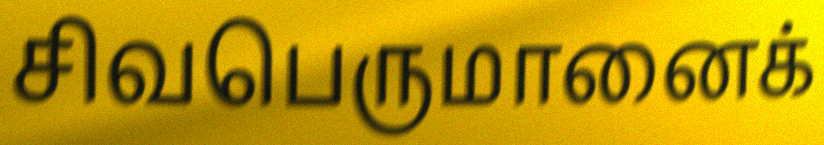
சிவபெருமானைக்